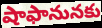
షాఫానునకు